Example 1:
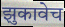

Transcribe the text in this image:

झुकावेच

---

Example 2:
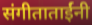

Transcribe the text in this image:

संगीताताईंनी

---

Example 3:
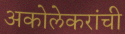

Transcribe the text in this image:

अकोलेकरांची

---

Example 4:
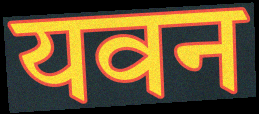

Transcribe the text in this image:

यवन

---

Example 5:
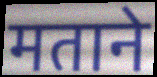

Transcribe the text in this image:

मताने